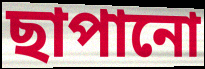
ছাপানো